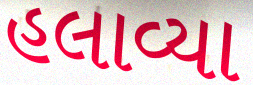
હલાવ્યા